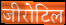
जीरोटिल